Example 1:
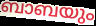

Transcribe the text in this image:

ബാബയും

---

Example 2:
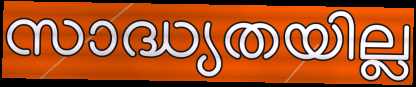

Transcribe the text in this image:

സാദ്ധ്യതയില്ല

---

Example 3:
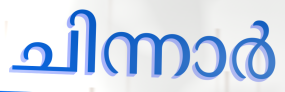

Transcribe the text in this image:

ചിന്നാർ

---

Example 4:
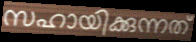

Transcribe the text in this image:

സഹായിക്കുന്നത്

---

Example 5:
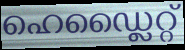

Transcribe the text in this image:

ഹെഡ്ലൈറ്റ്